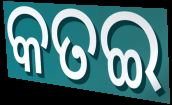
କତଇ